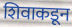
शिवाकडून